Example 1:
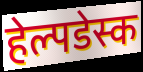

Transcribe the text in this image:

हेल्पडेस्क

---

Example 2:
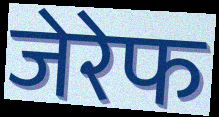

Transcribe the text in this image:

जेरेफ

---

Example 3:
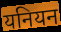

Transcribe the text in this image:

यनियन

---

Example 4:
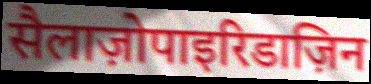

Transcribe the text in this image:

सैलाज़ोपाइरिडाज़िन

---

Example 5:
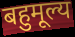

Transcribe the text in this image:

बहुमूल्य